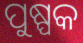
ପୁଷ୍ପକ